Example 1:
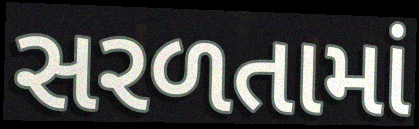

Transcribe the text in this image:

સરળતામાં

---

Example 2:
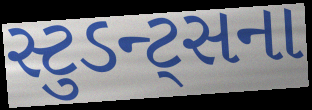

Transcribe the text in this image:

સ્ટુડન્ટ્સના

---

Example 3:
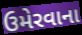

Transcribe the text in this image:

ઉમેરવાના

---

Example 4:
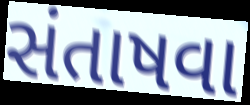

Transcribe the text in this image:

સંતાષવા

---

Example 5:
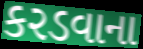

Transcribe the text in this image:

કરડવાના